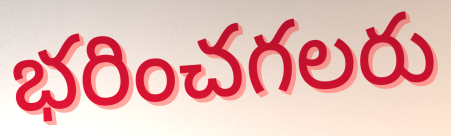
భరించగలరు